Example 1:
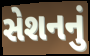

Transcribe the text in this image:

સેશનનું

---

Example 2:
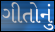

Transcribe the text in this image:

ગીતોનું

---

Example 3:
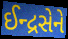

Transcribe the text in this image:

ઈન્દ્રસેને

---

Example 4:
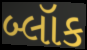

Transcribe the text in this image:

બ્લૉક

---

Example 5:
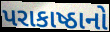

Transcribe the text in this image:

પરાકાષ્ઠાનો